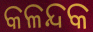
କଳନ୍ଦକ